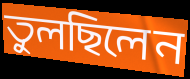
তুলছিলেন